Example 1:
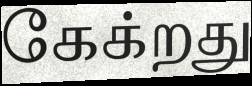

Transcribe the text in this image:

கேக்றது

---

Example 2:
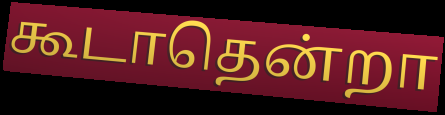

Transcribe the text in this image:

கூடாதென்றா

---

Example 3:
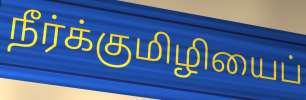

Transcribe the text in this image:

நீர்க்குமிழியைப்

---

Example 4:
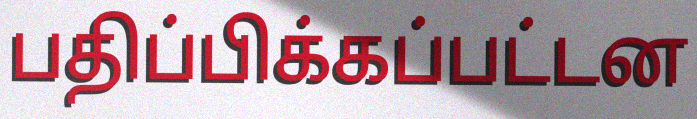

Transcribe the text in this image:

பதிப்பிக்கப்பட்டன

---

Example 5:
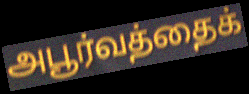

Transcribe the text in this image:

அபூர்வத்தைக்